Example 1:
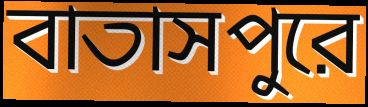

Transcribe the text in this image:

বাতাসপুরে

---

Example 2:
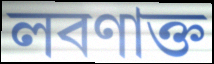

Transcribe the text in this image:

লবণাক্ত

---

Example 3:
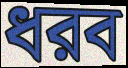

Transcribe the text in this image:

ধরব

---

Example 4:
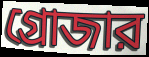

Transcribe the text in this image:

গ্রোজার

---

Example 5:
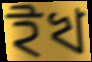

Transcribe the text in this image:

ইখ